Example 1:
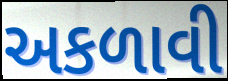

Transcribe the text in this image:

અકળાવી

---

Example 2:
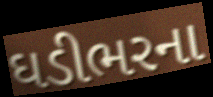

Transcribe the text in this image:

ઘડીભરના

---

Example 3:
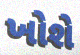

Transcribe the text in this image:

ખોશે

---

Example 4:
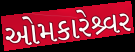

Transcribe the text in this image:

ઓમકારેશ્ર્વર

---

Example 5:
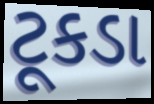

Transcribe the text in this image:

ટૂકડા